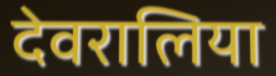
देवरालिया